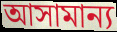
আসামান্য